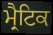
ਮ੍ਰੈਟਿਕ